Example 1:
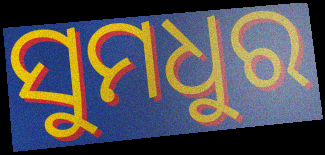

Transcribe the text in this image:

ସୁମଧୁର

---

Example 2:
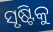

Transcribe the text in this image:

ସୃଷ୍ଟିକୁ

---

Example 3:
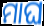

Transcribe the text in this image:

ମାଘ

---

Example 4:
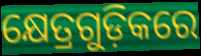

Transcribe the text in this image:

କ୍ଷେତ୍ରଗୁଡ଼ିକରେ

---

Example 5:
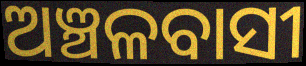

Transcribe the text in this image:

ଅଞ୍ଚଳବାସୀ